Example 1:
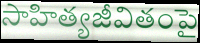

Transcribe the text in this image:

సాహిత్యజీవితంపై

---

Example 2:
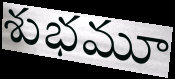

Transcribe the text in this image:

శుభమూ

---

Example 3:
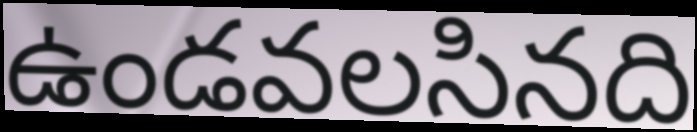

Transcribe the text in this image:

ఉండవలసినది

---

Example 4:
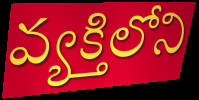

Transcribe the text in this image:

వ్యక్తిలోని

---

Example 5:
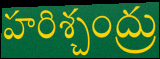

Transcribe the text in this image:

హరిశ్చంద్రు